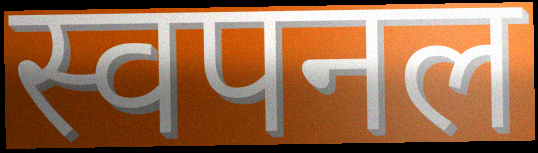
स्वपनल